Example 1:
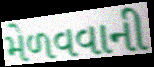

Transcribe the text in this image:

મેળવવાની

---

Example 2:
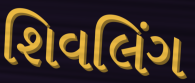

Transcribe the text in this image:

શિવલિંગ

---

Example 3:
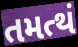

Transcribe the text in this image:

તમત્થં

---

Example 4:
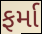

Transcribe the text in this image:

ફર્મા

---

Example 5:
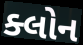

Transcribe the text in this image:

ક્લોન